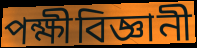
পক্ষীবিজ্ঞানী